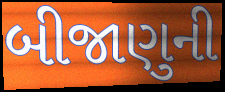
બીજાણુની